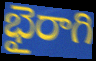
భైరాగి